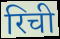
रिची